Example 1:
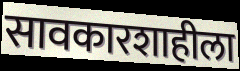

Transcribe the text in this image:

सावकारशाहीला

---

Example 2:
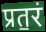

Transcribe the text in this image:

प्रत॒रं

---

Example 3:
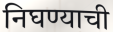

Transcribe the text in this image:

निघण्याची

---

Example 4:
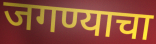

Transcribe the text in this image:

जगण्याचा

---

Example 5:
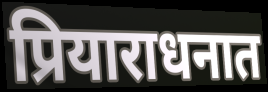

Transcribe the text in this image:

प्रियाराधनात